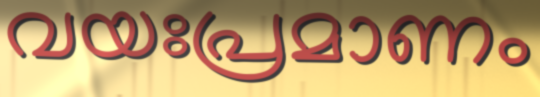
വയഃപ്രമാണം